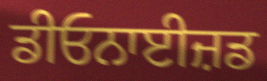
ਡੀਓਨਾਈਜ਼ਡ